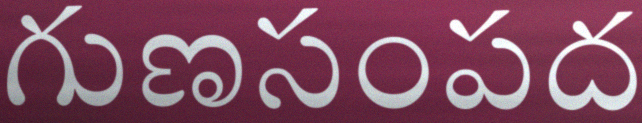
గుణసంపద